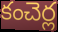
కంచెర్ల